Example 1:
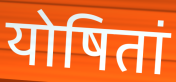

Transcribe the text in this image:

योषितां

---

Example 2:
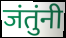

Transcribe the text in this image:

जंतुंनी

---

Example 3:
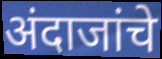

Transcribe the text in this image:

अंदाजांचे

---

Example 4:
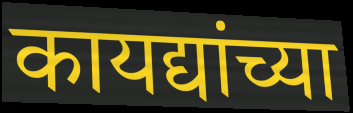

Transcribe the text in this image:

कायद्यांच्या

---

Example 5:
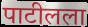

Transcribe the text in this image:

पाटीलला